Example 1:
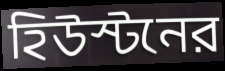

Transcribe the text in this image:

হিউস্টনের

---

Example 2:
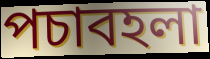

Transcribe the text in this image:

পচাবহলা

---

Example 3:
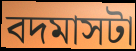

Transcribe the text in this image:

বদমাসটা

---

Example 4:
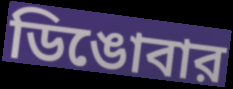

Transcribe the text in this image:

ডিঙোবার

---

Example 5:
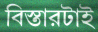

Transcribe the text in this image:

বিস্তারটাই